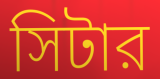
সিটার